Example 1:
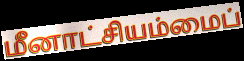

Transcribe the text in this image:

மீனாட்சியம்மைப்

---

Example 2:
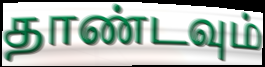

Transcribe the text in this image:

தாண்டவும்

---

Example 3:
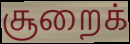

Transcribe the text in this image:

சூறைக்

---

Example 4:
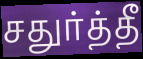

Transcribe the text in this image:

சதுர்த்தீ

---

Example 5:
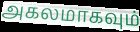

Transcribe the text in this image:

அகலமாகவும்